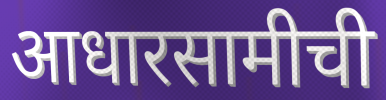
आधारसामीची